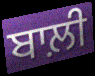
ਬਾਲ਼ੀ